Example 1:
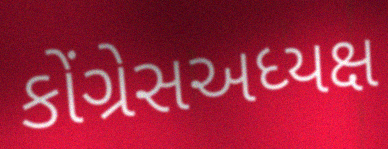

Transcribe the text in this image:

કોંગ્રેસઅધ્યક્ષ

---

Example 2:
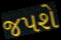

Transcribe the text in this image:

જપશે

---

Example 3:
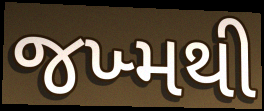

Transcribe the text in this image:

જખ્મથી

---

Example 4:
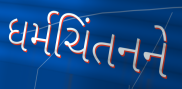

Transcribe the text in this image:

ધર્મચિંતનને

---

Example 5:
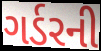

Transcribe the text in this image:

ગર્ડરની